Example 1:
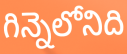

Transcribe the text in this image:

గిన్నెలోనిది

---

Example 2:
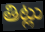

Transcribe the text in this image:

తిట్లు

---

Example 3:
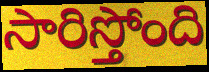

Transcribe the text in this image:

సారిస్తోంది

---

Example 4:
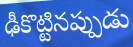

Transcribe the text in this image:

ఢీకొట్టినప్పుడు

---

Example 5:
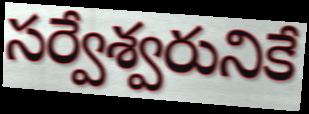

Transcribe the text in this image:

సర్వేశ్వరునికే